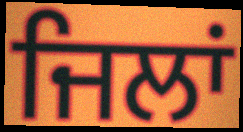
ਜਿਲਾਂ